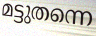
മട്ടുതന്നെ